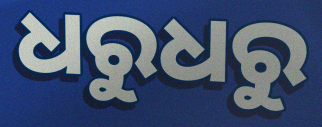
ଧରୁଧରୁ